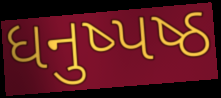
ધનુષ્પષ્ઠ